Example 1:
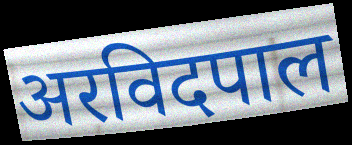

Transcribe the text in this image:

अरविदपाल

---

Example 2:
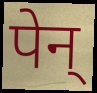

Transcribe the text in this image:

पेन्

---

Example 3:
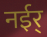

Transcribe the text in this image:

नईर्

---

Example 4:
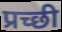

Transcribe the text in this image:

प्रच्छी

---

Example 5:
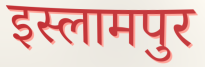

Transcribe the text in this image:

इस्लामपुर